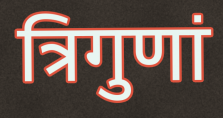
त्रिगुणां